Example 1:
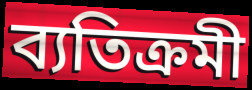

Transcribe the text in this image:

ব্যতিক্ৰমী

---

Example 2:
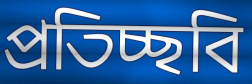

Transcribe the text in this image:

প্ৰতিচ্ছবি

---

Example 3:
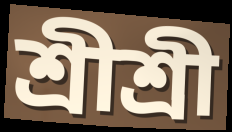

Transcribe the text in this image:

শ্ৰীশ্ৰী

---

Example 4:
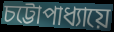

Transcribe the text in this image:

চট্টোপাধ্যায়ে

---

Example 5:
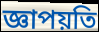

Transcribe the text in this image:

জ্ঞাপয়তি